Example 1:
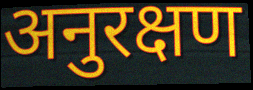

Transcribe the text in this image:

अनुरक्षण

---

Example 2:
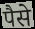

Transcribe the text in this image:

पैसे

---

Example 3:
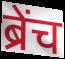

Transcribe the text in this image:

ब्रेंच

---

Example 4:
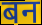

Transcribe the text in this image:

बन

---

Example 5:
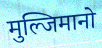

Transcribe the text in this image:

मुल्जिमानो